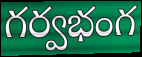
గర్వభంగ